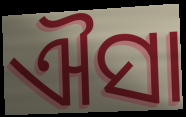
ଐସା